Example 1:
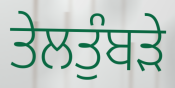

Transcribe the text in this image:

ਤੇਲਤੁੰਬੜੇ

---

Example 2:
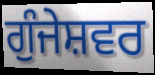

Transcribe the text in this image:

ਗੁੰਜੇਸ਼ਵਰ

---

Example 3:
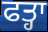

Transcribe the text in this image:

ਫਤ੍ਹਾ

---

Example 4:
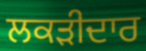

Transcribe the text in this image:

ਲਕੜੀਦਾਰ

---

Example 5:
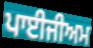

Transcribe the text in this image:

ਪਾਈਜੀਅਮ